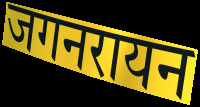
जगनरायन